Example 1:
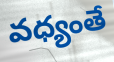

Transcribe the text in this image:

వధ్యంతే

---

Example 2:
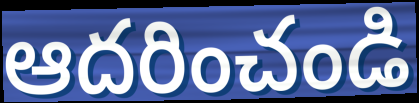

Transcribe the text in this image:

ఆదరించండి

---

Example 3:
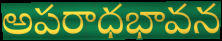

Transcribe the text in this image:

అపరాధభావన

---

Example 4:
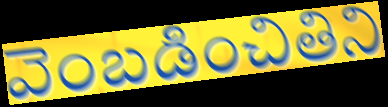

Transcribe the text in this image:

వెంబడించితిని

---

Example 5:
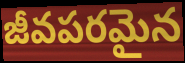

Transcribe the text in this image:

జీవపరమైన